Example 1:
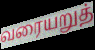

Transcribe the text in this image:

வரையறுத்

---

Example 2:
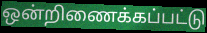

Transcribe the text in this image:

ஒன்றிணைக்கப்பட்டு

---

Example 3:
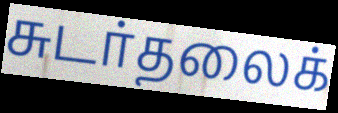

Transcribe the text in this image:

சுடர்தலைக்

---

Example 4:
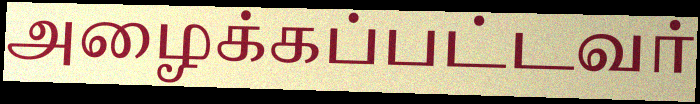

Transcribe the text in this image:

அழைக்கப்பட்டவர்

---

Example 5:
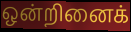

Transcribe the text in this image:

ஒன்றினைக்